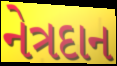
નેત્રદાન